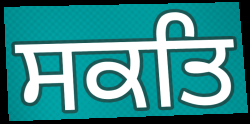
ਸਕਤਿ